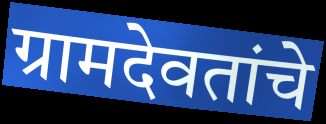
ग्रामदेवतांचे